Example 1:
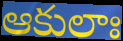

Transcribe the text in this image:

ఆకులాః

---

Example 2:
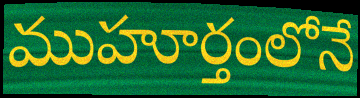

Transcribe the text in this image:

ముహూర్తంలోనే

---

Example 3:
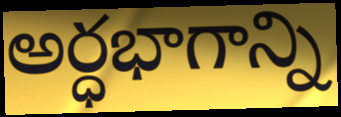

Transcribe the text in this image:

అర్ధభాగాన్ని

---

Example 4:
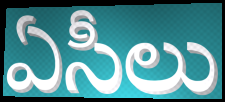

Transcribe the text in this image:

ఏసీలు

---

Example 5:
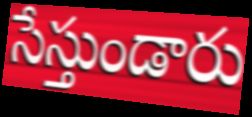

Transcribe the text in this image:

సేస్తుండారు